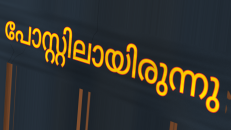
പോസ്റ്റിലായിരുന്നു